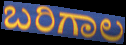
ಬರಿಗಾಲ